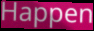
Happen